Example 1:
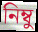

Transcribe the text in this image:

নিম্বু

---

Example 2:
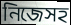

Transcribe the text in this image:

নিজেসহ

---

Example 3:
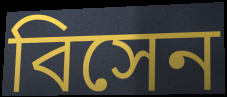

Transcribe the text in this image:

বিসেন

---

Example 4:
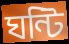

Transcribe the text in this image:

ঘন্টি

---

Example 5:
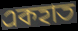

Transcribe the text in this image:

একহাত